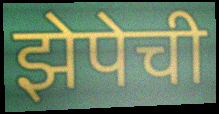
झेपेची